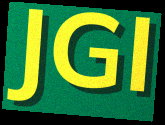
JGI